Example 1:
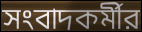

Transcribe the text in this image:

সংবাদকর্মীর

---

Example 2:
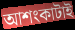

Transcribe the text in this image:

আশংকাটাই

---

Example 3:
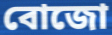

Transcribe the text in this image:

বোজো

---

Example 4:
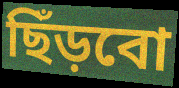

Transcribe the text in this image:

ছিঁড়বো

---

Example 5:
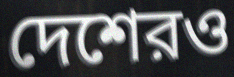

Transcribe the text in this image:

দেশেরও